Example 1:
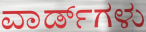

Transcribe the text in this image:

ವಾರ್ಡ್‌ಗಳು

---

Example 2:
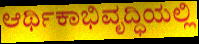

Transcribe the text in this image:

ಆರ್ಥಿಕಾಭಿವೃದ್ಧಿಯಲ್ಲಿ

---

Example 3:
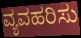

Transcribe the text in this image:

ವ್ಯವಹರಿಸು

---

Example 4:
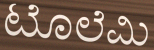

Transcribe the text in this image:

ಟೊಲೆಮಿ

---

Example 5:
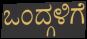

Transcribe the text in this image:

ಒಂದ್ಗಳಿಗೆ